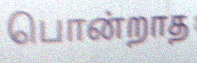
பொன்றாத